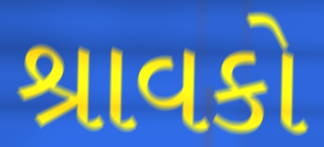
શ્રાવકો